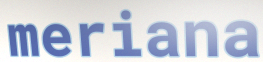
meriana